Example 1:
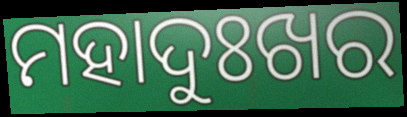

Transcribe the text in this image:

ମହାଦୁଃଖର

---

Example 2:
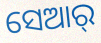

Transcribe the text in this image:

ସେଆର୍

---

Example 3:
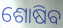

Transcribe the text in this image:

ଶୋଷିବ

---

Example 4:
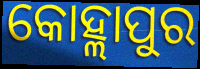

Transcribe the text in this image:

କୋହ୍ଲାପୁର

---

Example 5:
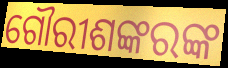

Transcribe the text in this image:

ଗୌରୀଶଙ୍କରଙ୍କ